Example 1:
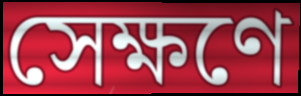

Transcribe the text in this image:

সেক্ষণে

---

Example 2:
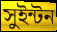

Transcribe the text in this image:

সুইন্টন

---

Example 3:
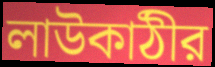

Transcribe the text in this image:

লাউকাঠীর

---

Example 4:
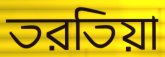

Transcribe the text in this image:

তরতিয়া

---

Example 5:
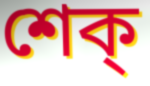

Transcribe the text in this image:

শেক্